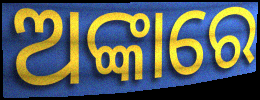
ଅଙ୍କାରେ